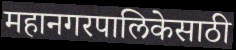
महानगरपालिकेसाठी